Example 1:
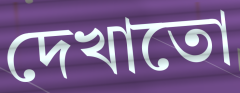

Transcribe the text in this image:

দেখাতো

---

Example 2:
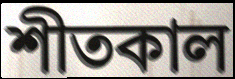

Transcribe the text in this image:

শীতকাল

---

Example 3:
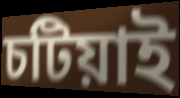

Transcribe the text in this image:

চটিয়াই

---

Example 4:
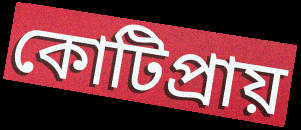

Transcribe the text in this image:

কোটিপ্ৰায়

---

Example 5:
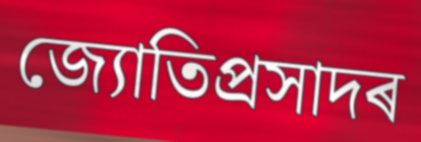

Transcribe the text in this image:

জ্যোতিপ্ৰসাদৰ